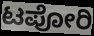
ಟಪೋರಿ